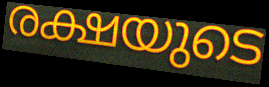
രക്ഷയുടെ